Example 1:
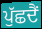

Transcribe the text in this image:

ਪੁੱਛਦੈਂ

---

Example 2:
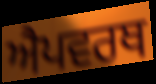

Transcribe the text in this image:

ਐਪਵਰਥ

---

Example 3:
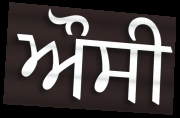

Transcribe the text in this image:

ਔਸੀ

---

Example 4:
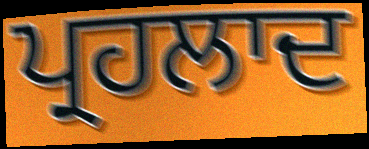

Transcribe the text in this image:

ਪ੍ਰਹਲਾਦ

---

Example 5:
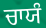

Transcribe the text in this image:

ਚਾਯੰ